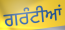
ਗਰੰਟੀਆਂ